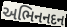
અભિનનદન